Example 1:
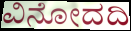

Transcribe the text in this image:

ವಿನೋದದಿ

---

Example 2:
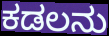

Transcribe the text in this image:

ಕಡಲನು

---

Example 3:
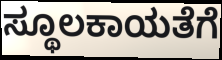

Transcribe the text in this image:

ಸ್ಥೂಲಕಾಯತೆಗೆ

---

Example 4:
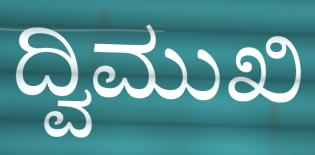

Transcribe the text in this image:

ದ್ವಿಮುಖಿ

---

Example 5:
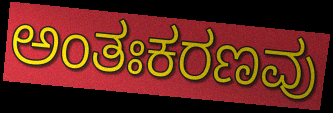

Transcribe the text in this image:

ಅಂತಃಕರಣವು